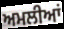
ਅਮਲੀਆਂ